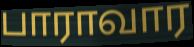
பாராவார